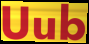
Uub